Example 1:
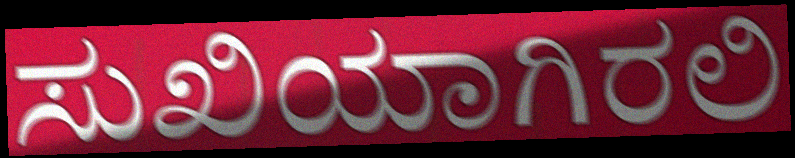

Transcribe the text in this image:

ಸುಖಿಯಾಗಿರಲಿ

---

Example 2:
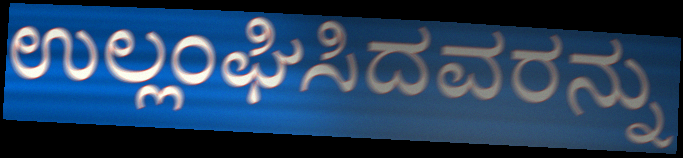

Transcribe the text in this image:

ಉಲ್ಲಂಘಿಸಿದವರನ್ನು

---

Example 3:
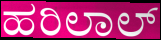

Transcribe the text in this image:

ಹರಿಲಾಲ್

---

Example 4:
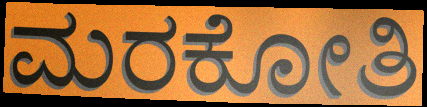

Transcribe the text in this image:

ಮರಕೋತಿ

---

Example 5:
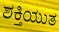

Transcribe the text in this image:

ಶಕ್ತಿಯುತ